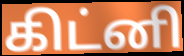
கிட்னி